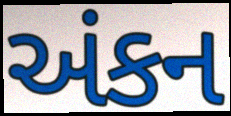
અંકન